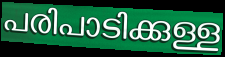
പരിപാടിക്കുള്ള